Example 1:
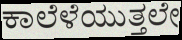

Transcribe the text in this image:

ಕಾಲೆಳೆಯುತ್ತಲೇ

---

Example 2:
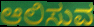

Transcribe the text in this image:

ಆಲಿಸುವ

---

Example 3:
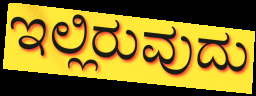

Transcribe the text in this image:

ಇಲ್ಲಿರುವುದು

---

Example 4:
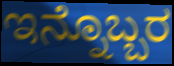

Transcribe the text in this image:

ಇನ್ನೊಬ್ಬರ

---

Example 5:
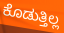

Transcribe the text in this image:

ಕೊಡುತ್ತಿಲ್ಲ